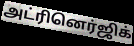
அட்ரினெர்ஜிக்